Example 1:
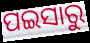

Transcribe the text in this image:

ପଇସାରୁ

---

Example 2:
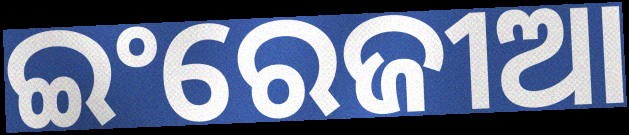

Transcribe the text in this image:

ଇଂରେଜୀଆ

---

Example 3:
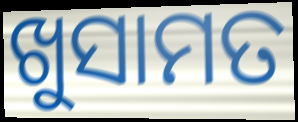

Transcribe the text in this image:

ଖୁସାମତ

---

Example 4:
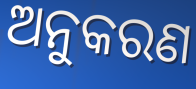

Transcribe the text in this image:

ଅନୁକରଣ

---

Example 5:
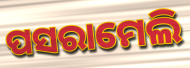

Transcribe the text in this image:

ପସରାମେଲି